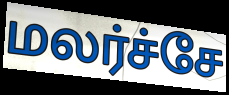
மலர்ச்சே